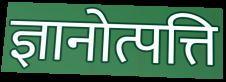
ज्ञानोत्पत्ति